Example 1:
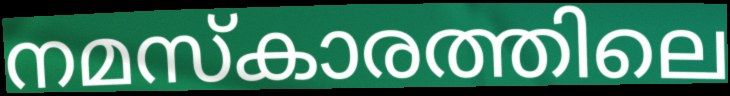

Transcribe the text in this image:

നമസ്കാരത്തിലെ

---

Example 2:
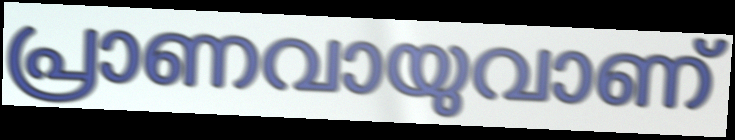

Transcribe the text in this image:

പ്രാണവായുവാണ്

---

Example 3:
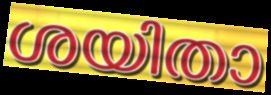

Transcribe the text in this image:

ശയിതാ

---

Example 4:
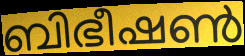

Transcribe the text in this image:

ബിഭീഷൺ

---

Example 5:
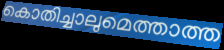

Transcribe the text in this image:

കൊതിച്ചാലുമെത്താത്ത